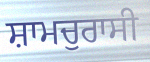
ਸ਼ਾਮਚੁਰਾਸੀ